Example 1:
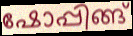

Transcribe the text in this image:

ഷോപ്പിങ്ങ്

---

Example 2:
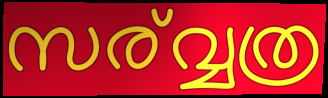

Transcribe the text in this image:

സര്വ്വത്ര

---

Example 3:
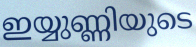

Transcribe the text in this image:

ഇയ്യുണ്ണിയുടെ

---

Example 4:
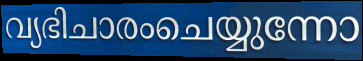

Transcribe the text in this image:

വ്യഭിചാരംചെയ്യുന്നോ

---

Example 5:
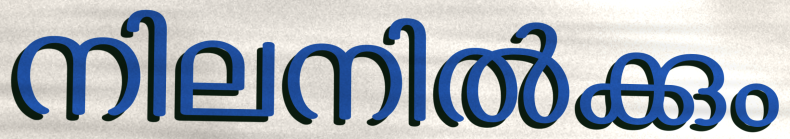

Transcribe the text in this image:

നിലനിൽക്കും